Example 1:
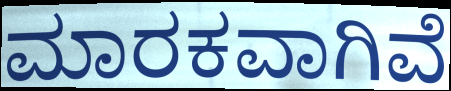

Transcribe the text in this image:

ಮಾರಕವಾಗಿವೆ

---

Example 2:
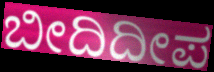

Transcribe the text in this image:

ಬೀದಿದೀಪ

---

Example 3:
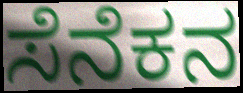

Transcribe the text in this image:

ಸೆನೆಕನ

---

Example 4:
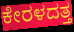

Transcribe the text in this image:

ಕೇರಳದತ್ತ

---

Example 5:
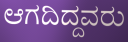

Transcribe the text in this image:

ಆಗದಿದ್ದವರು